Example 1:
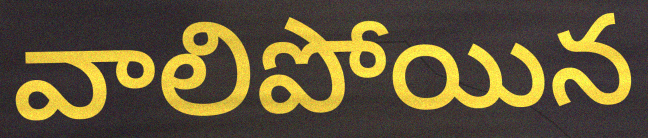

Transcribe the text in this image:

వాలిపోయిన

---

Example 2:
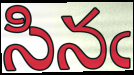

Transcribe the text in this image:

సినఁ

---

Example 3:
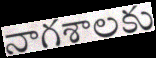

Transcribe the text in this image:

నాగశాలకు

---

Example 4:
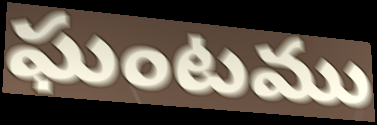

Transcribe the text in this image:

ఘంటము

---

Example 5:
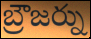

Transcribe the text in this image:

బ్రౌజర్ను